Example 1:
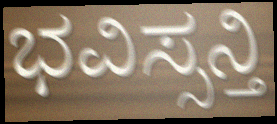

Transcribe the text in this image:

ಭವಿಸ್ಸನ್ತಿ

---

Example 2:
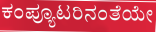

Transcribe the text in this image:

ಕಂಪ್ಯೂಟರಿನಂತೆಯೇ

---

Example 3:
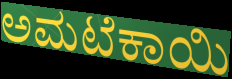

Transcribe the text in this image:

ಅಮಟೆಕಾಯಿ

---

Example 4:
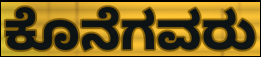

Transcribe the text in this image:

ಕೊನೆಗವರು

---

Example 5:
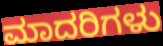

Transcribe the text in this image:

ಮಾದರಿಗಳು